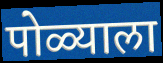
पोळ्याला